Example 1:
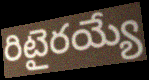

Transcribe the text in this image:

రిటైరయ్యే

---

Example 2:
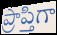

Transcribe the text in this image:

ప్రాప్తిగా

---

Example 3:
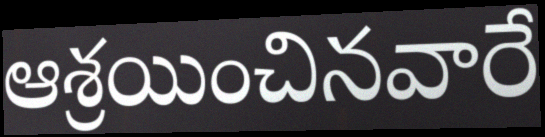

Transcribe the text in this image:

ఆశ్రయించినవారే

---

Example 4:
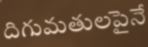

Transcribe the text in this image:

దిగుమతులపైనే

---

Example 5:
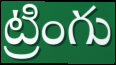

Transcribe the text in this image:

ట్రింగు